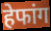
हेफांग